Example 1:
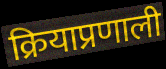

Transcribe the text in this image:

क्रियाप्रणाली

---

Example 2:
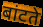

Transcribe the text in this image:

बांटते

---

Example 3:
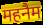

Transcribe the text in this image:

महनैम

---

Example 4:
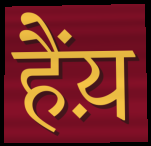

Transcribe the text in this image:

हैंय़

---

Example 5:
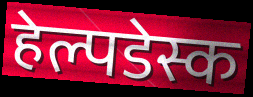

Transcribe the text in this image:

हेल्पडेस्क